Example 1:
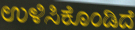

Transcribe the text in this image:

ಉಳಿಸಿಕೊಂಡಿದೆ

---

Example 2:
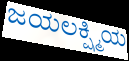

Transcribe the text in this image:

ಜಯಲಕ್ಷ್ಮಿಯ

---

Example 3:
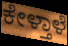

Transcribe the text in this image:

ಕೇಳ್ತಾಳೆ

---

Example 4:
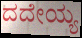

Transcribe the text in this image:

ದದೇಯ್ಯ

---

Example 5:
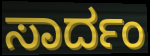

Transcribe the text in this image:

ಸಾರ್ದಂ